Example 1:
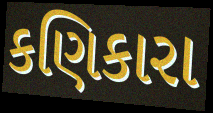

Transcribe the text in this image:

કણિકારા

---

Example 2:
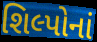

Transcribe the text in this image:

શિલ્પોનાં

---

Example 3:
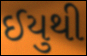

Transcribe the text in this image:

ઈયુથી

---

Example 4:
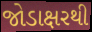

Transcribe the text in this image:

જોડાક્ષરથી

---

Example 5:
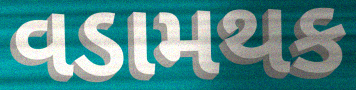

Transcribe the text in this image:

વડામથક